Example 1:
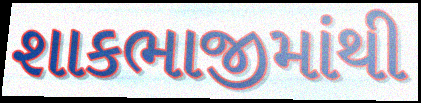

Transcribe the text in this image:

શાકભાજીમાંથી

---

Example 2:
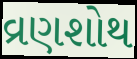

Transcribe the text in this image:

વ્રણશોથ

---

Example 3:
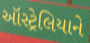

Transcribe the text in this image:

ઑસ્ટ્રેલિયાને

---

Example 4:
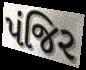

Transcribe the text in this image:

પંજિર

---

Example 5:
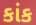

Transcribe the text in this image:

કાંક